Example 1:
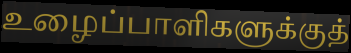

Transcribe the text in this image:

உழைப்பாளிகளுக்குத்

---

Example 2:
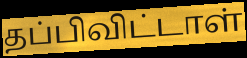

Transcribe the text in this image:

தப்பிவிட்டாள்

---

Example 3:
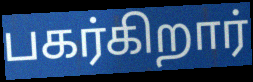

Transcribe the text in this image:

பகர்கிறார்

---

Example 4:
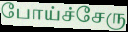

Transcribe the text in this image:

போய்ச்சேரு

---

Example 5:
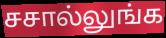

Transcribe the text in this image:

சசால்லுங்க